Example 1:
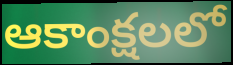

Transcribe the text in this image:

ఆకాంక్షలలో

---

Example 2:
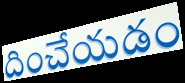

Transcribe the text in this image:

దించేయడం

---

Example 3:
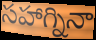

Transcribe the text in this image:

సహాగ్నినా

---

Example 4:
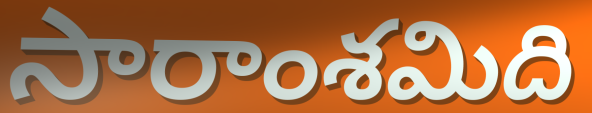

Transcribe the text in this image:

సారాంశమిది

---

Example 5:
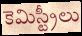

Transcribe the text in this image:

కెమిస్ట్రీలు